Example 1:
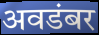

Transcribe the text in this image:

अवडंबर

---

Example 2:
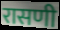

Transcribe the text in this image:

रासणी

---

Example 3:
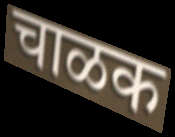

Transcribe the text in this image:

चाळक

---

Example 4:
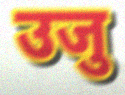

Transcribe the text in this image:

उजु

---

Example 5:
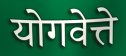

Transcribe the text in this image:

योगवेत्ते